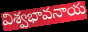
విశ్వభావనాయ